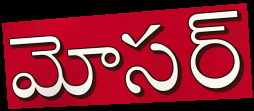
మోసర్